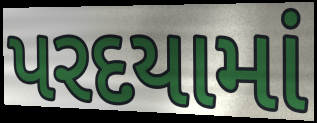
પરદયામાં